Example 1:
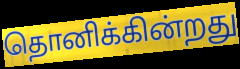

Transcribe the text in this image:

தொனிக்கின்றது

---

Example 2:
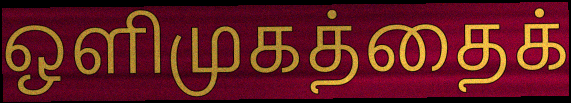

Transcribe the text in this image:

ஒளிமுகத்தைக்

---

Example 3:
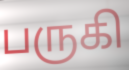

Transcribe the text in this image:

பருகி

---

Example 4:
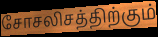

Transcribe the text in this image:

சோசலிசத்திற்கும்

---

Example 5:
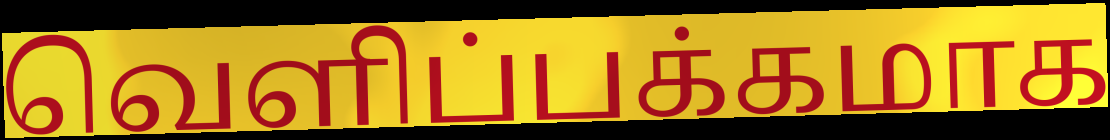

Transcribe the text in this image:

வெளிப்பக்கமாக